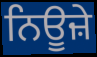
ਨਿਊਜ਼ੇ